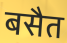
बसैत